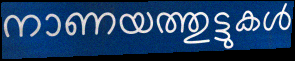
നാണയത്തുട്ടുകൾ